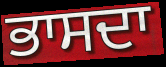
ਭਾਸਦਾ